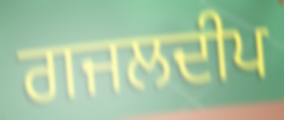
ਗਜਲਦੀਪ